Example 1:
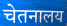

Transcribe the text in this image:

चेतनालय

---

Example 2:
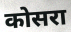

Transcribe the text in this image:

कोसरा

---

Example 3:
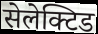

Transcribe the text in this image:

सेलेक्टिड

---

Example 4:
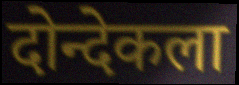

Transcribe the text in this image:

दोन्देकला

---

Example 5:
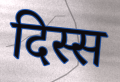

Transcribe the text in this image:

दिस्स